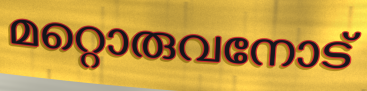
മറ്റൊരുവനോട്